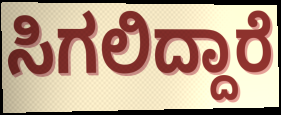
ಸಿಗಲಿದ್ದಾರೆ